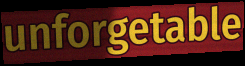
unforgetable